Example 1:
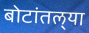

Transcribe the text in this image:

बोटांतल्या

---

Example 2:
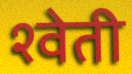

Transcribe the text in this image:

श्वेती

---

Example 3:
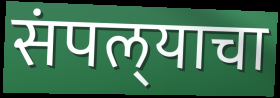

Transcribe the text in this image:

संपल्याचा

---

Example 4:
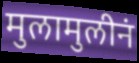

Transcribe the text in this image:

मुलामुलीनं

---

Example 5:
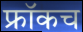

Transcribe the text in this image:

फ्रॉकच